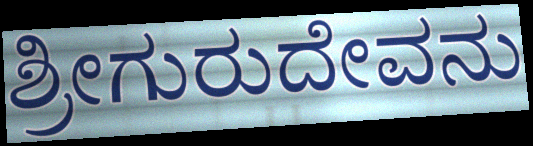
ಶ್ರೀಗುರುದೇವನು